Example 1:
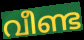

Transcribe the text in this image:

വീണ്ട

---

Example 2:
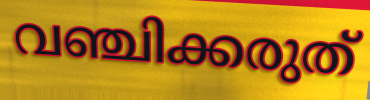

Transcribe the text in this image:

വഞ്ചിക്കരുത്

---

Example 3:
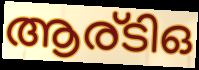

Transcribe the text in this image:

ആര്ടിഒ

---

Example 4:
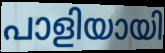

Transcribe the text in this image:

പാളിയായി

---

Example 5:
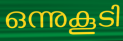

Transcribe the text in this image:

ഒന്നുകൂടി